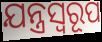
ଯନ୍ତ୍ରସ୍ୱରୂପ